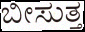
ಬೀಸುತ್ತ